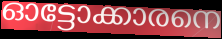
ഓട്ടോക്കാരനെ